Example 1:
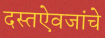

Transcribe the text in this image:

दस्तऐवजांचे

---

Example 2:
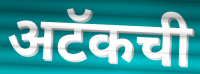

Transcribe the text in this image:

अटॅकची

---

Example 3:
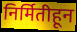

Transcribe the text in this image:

निर्मितीहून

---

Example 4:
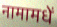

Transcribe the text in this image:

नामामधें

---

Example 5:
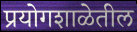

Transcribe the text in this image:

प्रयोगशाळेतील